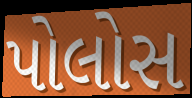
પોલોસ